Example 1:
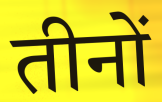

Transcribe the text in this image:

तीनों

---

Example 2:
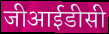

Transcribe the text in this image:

जीआईडीसी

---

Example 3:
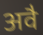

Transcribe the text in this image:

अवै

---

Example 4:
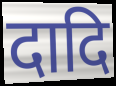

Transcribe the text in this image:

दादि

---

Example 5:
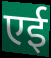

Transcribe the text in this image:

एई